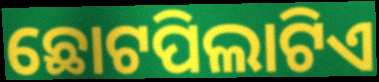
ଛୋଟପିଲାଟିଏ